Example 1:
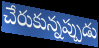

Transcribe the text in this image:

చేరుకున్నప్పుడు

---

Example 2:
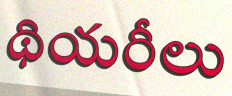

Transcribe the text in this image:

థియరీలు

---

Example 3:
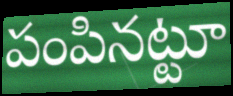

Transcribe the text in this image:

పంపినట్టూ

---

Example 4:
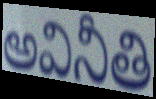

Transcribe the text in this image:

అవినీతి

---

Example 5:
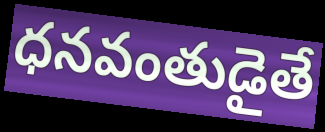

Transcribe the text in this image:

ధనవంతుడైతే